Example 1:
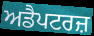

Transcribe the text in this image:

ਅਡੈਪਟਰਜ਼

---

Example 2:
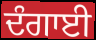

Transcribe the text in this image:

ਦੰਗਾਈ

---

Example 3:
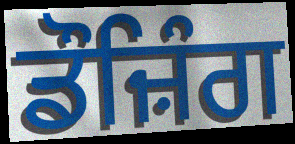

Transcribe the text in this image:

ਡੌਜ਼ਿੰਗ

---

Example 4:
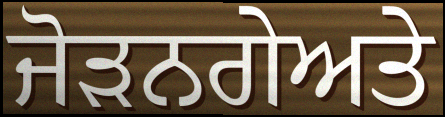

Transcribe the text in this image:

ਜੋੜਨਗੇਅਤੇ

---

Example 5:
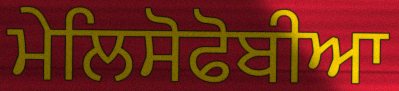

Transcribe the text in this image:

ਮੇਲਿਸੋਫੋਬੀਆ